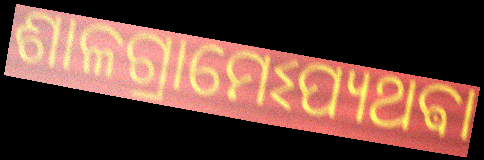
ଶାଳଗ୍ରାମେଽପ୍ଯଥଵା